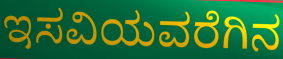
ಇಸವಿಯವರೆಗಿನ